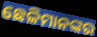
ଛେଳିମାନଙ୍କର